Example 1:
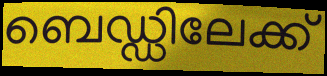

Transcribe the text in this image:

ബെഡ്ഡിലേക്ക്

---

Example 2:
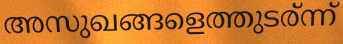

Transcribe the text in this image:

അസുഖങ്ങളെത്തുടര്ന്ന്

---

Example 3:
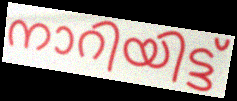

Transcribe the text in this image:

നാറിയിട്ട്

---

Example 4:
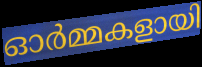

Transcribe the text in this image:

ഓർമ്മകളായി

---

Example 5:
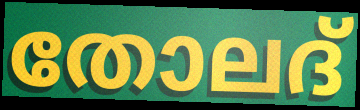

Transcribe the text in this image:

തോലദ്